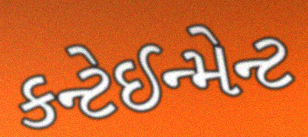
કન્ટેઈન્મેન્ટ